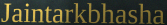
Jaintarkbhasha